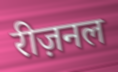
रीज़नल